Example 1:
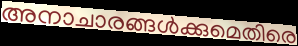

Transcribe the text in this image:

അനാചാരങ്ങൾക്കുമെതിരെ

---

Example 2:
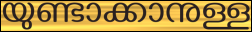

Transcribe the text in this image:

യുണ്ടാക്കാനുള്ള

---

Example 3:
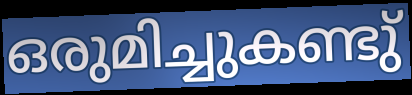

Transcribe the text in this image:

ഒരുമിച്ചുകണ്ടു്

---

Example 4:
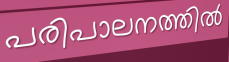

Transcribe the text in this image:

പരിപാലനത്തിൽ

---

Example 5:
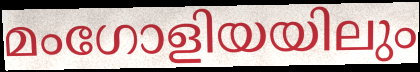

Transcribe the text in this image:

മംഗോളിയയിലും